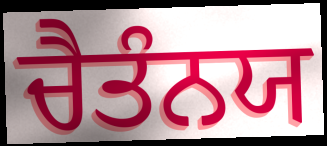
ਚੈਤੰਨਯ